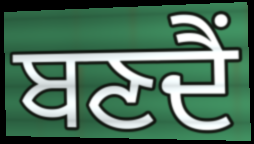
ਬਣਦੈਂ